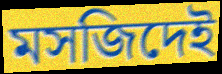
মসজিদেই